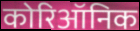
कोरिऑनिक